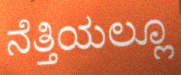
ನೆತ್ತಿಯಲ್ಲೂ